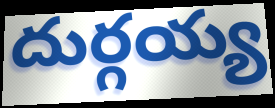
దుర్గయ్య